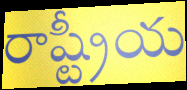
రాష్ట్రీయ